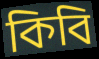
কিবি